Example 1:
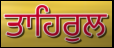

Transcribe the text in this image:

ਤਾਹਿਰੁਲ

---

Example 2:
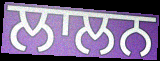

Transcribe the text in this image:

ਲਾਲਨ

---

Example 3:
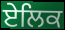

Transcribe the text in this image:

ਏਲਿਕ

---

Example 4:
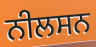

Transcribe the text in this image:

ਨੀਲਸਨ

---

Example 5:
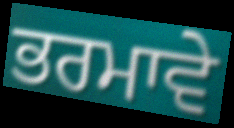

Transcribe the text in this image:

ਭਰਮਾਵੇ